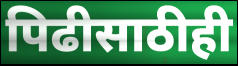
पिढीसाठीही